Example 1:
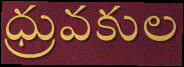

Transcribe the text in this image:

ధ్రువకుల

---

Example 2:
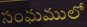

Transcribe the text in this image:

సంఘములో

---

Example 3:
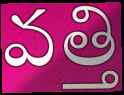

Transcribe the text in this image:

వత్తి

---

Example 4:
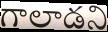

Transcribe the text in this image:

గాలాడని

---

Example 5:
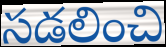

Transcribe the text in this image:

సడలించి